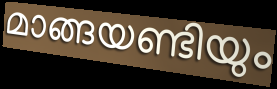
മാങ്ങയണ്ടിയും